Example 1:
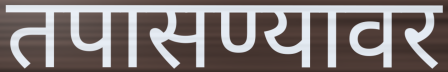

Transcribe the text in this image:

तपासण्यावर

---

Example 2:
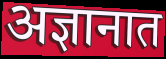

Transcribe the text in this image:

अज्ञानात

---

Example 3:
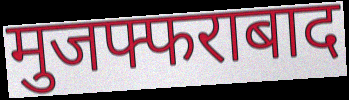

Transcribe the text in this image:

मुजफ्फराबाद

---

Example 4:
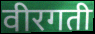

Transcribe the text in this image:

वीरगती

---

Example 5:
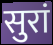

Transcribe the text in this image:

सुरां